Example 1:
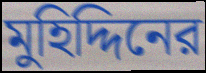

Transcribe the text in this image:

মুহিদ্দিনের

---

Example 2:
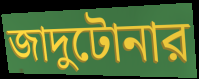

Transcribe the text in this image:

জাদুটোনার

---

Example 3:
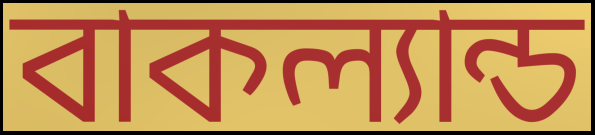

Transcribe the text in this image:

বাকল্যান্ড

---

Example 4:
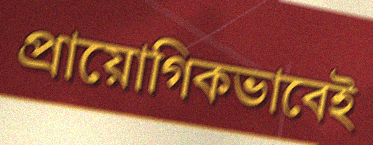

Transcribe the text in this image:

প্রায়োগিকভাবেই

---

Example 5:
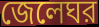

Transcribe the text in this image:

জেলেঘর